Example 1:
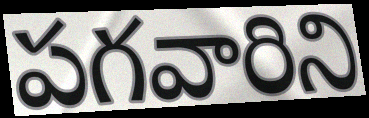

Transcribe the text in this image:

పగవారిని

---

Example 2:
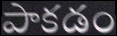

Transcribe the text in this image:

పాకడం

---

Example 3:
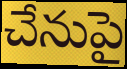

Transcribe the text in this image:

చేనుపై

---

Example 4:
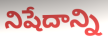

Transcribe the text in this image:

నిషేదాన్ని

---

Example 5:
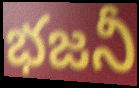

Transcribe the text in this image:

భజనీ